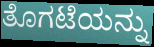
ತೊಗಟೆಯನ್ನು